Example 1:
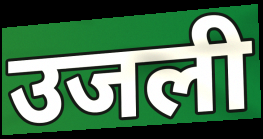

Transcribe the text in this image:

उजली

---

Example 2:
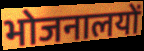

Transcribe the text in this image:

भोजनालयों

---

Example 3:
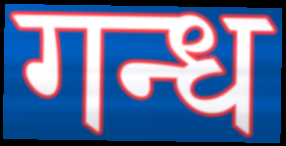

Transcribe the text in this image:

गन्ध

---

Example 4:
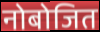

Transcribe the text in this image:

नोबोजित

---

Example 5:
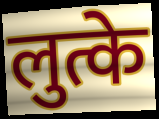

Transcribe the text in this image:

लुत्के